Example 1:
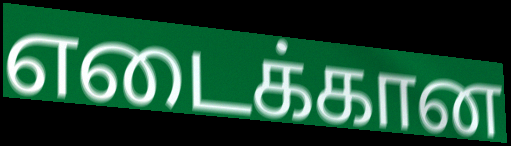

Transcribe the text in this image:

எடைக்கான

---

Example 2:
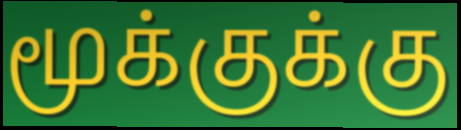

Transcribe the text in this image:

மூக்குக்கு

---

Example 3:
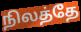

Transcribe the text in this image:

நிலத்தே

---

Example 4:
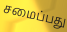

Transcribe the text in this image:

சமைப்பது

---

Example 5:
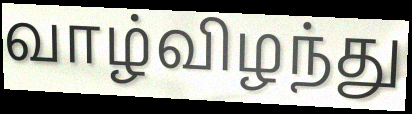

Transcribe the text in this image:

வாழ்விழந்து